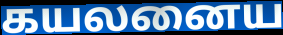
கயலனைய